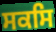
ਸਕਸਿ